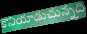
కొనియాడుచున్నది